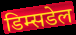
डिम्सडेल